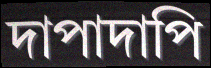
দাপাদাপি